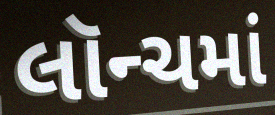
લૉન્ચમાં